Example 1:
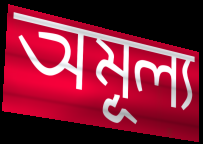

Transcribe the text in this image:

অমূল্য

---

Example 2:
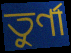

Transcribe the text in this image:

তুর্ণা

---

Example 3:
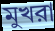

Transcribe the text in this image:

মুখরা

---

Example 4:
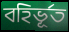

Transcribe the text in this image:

বহির্ভূত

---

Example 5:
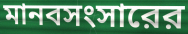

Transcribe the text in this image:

মানবসংসারের